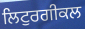
ਲਿਟੁਰਗੀਕਲ